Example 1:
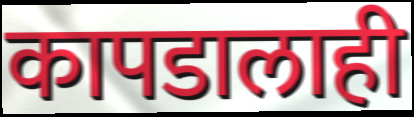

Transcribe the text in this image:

कापडालाही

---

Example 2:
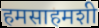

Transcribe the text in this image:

हमसाहमशी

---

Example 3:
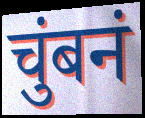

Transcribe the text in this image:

चुंबनं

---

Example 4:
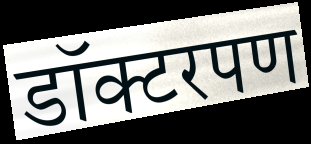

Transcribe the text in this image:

डॉक्टरपण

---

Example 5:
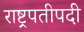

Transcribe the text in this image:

राष्ट्रपतीपदी